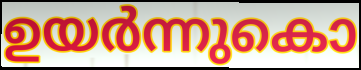
ഉയർന്നുകൊ